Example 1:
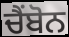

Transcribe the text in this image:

ਚੈਂਬੋਨ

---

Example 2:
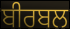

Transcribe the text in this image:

ਬੀਰਬਲ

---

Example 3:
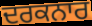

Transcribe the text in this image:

ਦਰਕਨਾਰ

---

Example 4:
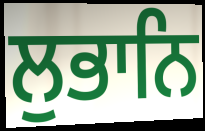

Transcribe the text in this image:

ਲੁਭਾਨਿ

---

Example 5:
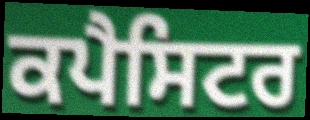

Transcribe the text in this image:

ਕਪੈਸਿਟਰ